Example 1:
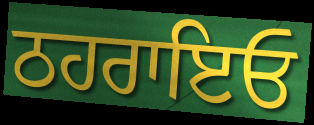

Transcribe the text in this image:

ਠਹਰਾਇਓ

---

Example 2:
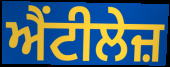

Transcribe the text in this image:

ਐਂਟੀਲੇਜ਼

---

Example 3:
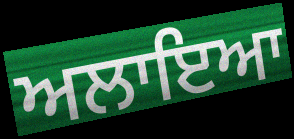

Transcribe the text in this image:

ਅਲਾਇਆ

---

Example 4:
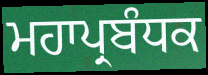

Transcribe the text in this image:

ਮਹਾਪ੍ਰਬੰਧਕ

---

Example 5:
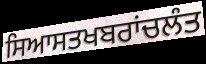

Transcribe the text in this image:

ਸਿਆਸਤਖਬਰਾਂਚਲੰਤ